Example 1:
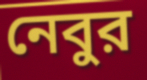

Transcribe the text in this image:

নেবুর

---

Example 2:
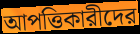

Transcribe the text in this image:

আপত্তিকারীদের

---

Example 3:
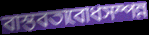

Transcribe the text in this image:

বাস্তবতাবোধসম্পন্ন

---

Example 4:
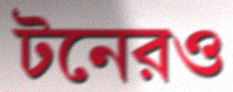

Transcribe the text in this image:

টনেরও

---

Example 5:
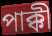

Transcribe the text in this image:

পাক্কী